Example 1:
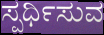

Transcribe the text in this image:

ಸ್ಪರ್ಧಿಸುವ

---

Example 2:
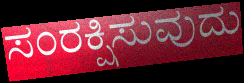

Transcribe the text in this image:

ಸಂರಕ್ಷಿಸುವುದು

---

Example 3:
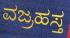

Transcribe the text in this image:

ವಜ್ರಹಸ್ತ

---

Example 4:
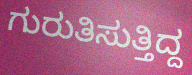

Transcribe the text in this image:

ಗುರುತಿಸುತ್ತಿದ್ದ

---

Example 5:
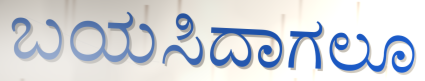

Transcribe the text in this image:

ಬಯಸಿದಾಗಲೂ